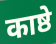
काष्ठे